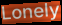
Lonely